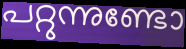
പറ്റുന്നുണ്ടോ